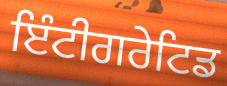
ਇੰਟੀਗਰੇਟਿਡ